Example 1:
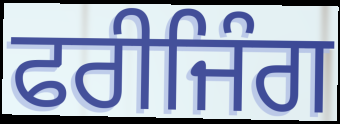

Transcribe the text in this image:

ਫਰੀਜਿੰਗ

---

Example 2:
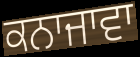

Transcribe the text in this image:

ਕਨਾਜਾਵਾ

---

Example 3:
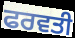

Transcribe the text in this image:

ਫਰਵਤੀ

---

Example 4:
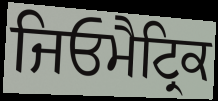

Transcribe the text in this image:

ਜਿਓਮੈਟ੍ਰਿਕ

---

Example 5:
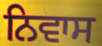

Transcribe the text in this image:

ਨਿਵਾਸ